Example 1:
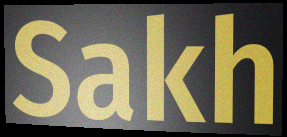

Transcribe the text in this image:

Sakh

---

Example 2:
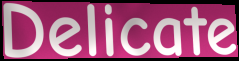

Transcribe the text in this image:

Delicate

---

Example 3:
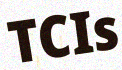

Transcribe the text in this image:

TCIs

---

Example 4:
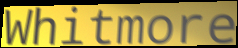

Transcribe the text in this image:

Whitmore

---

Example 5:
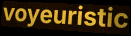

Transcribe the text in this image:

voyeuristic